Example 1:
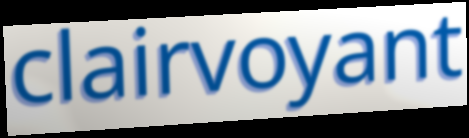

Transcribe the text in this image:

clairvoyant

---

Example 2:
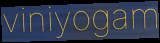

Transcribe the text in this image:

viniyogam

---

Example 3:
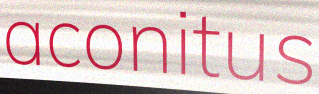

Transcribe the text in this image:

aconitus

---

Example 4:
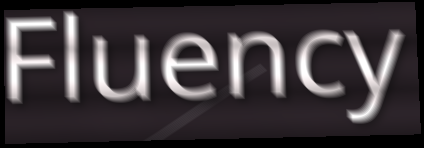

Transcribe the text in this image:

Fluency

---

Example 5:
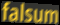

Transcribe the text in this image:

falsum